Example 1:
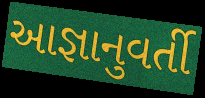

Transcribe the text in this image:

આજ્ઞાનુવર્તી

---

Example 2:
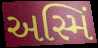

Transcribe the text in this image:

અસ્મિં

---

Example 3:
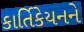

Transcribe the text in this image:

કાર્તિકેયનને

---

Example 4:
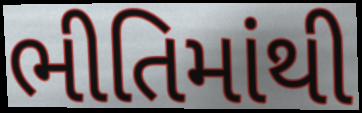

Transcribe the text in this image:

ભીતિમાંથી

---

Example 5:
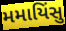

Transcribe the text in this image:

મમાયિંસુ